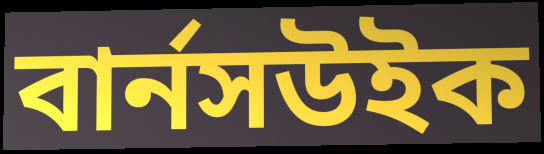
বার্নসউইক